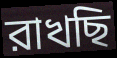
রাখছি